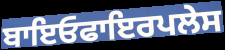
ਬਾਇਓਫਾਇਰਪਲੇਸ